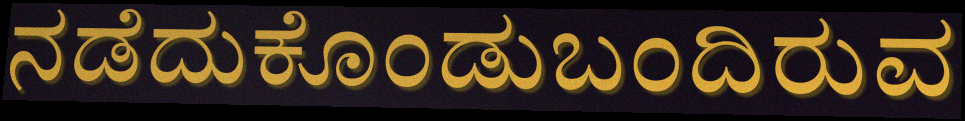
ನಡೆದುಕೊಂಡುಬಂದಿರುವ